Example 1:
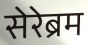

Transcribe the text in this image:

सेरेब्रम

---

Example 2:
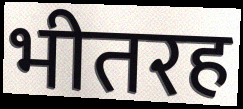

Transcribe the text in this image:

भीतरह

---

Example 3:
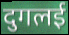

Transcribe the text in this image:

दुगलई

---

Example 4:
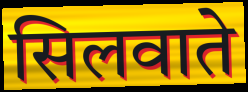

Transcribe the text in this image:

सिलवाते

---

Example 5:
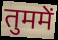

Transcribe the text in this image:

तुममें